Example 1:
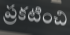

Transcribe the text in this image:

ప్రకటించి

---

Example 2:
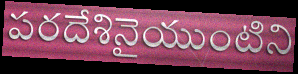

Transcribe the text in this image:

పరదేశినైయుంటిని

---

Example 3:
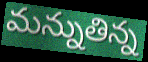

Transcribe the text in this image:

మన్నుతిన్న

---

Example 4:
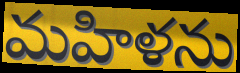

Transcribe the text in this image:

మహిళను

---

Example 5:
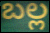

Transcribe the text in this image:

బల్ల